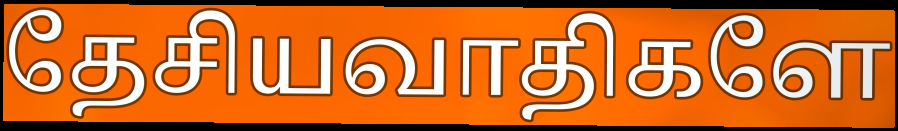
தேசியவாதிகளே